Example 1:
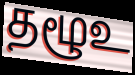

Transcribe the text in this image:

தழூஉ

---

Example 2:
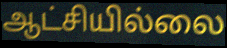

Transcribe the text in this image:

ஆட்சியில்லை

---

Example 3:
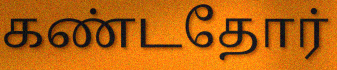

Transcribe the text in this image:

கண்டதோர்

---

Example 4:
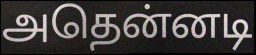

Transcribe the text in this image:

அதென்னடி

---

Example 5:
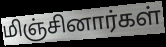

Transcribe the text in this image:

மிஞ்சினார்கள்